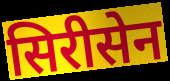
सिरीसेन